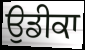
ਉਡੀਕਾ